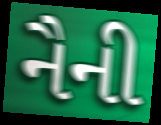
નૈની